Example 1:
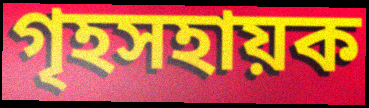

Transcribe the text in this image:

গৃহসহায়ক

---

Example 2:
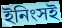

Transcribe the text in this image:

ইনিংসই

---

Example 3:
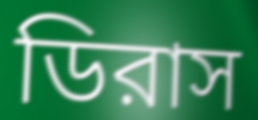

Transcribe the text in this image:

ডিরাস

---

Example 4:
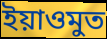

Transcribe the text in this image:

ইয়াওমুত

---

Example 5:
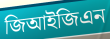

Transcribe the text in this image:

জিআইজিএন